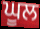
ਘੂਲ